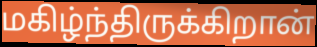
மகிழ்ந்திருக்கிறான்